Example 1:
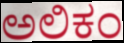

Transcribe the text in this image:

ಅಲಿಕಂ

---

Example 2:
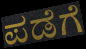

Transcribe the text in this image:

ಪಡೆಗೆ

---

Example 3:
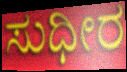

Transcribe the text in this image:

ಸುಧೀರ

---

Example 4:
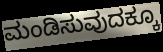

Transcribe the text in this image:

ಮಂಡಿಸುವುದಕ್ಕೂ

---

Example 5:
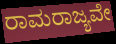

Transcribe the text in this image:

ರಾಮರಾಜ್ಯವೇ